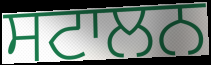
ਸਟਾਲਨ